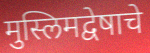
मुस्लिमद्वेषाचे